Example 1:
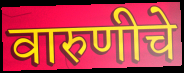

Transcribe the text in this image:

वारुणीचे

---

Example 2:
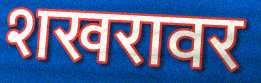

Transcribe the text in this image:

शखरावर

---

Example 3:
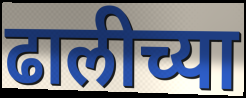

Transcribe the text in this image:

ढालीच्या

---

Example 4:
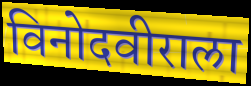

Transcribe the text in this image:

विनोदवीराला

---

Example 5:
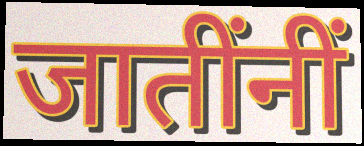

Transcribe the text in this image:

जातींनीं